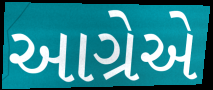
આગ્રેએ